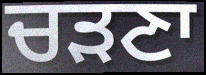
ਚੜਣਾ